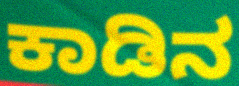
ಕಾಡಿನ